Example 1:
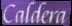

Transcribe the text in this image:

Caldera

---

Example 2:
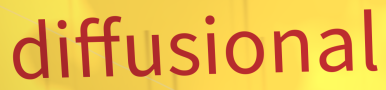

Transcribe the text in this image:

diffusional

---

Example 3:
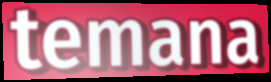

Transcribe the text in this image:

temana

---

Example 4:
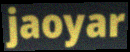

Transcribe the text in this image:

jaoyar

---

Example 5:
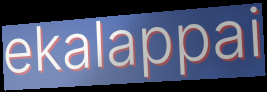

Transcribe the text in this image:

ekalappai